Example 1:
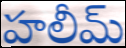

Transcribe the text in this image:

హలీమ్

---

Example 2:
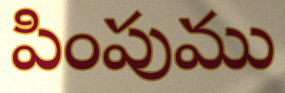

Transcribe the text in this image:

పింపుము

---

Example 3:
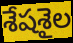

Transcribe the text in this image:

శేషశైల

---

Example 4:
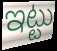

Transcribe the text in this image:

ఇట్టు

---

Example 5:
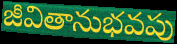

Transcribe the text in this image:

జీవితానుభవపు